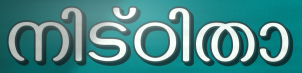
നിട്ഠിതാ